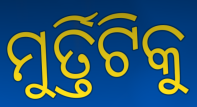
ମୁର୍ତ୍ତିଟିକୁ